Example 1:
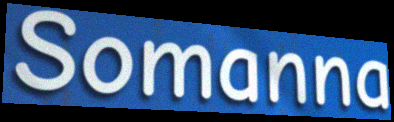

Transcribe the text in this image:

Somanna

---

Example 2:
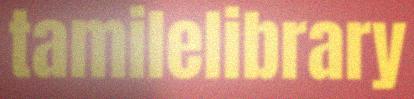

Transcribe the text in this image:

tamilelibrary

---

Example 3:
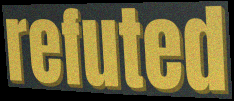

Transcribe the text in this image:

refuted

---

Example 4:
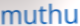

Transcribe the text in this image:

muthu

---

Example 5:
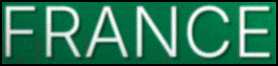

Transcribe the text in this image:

FRANCE